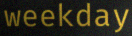
weekday